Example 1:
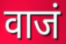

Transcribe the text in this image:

वाजं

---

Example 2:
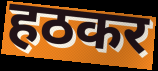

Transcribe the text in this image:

हठकर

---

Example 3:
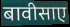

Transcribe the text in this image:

बावीसाए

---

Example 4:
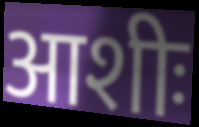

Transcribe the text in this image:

आशीः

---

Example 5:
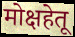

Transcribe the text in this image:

मोक्षहेतू